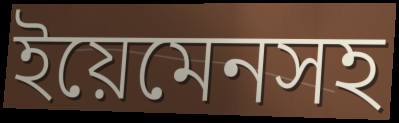
ইয়েমেনসহ